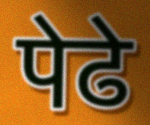
पेढे